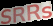
SRRs